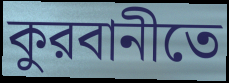
কুরবানীতে